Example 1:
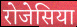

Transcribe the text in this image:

रोजेसिया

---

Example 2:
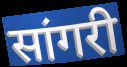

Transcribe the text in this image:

सांगरी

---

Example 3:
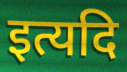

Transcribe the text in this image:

इत्यदि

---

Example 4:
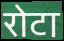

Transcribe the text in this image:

रोटा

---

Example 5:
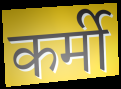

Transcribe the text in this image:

कर्मी